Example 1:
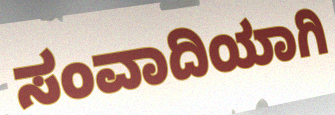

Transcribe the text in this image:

ಸಂವಾದಿಯಾಗಿ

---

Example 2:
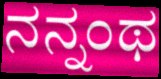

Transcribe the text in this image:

ನನ್ನಂಥ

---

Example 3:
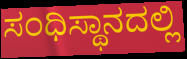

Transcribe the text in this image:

ಸಂಧಿಸ್ಥಾನದಲ್ಲಿ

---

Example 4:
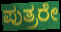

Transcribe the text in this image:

ಪುತ್ರರೇ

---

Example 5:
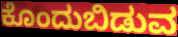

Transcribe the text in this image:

ಕೊಂದುಬಿಡುವ